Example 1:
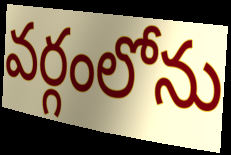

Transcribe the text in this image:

వర్గంలోను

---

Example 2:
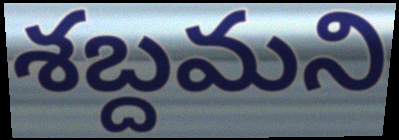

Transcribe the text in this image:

శబ్దమని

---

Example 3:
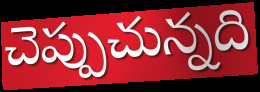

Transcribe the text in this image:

చెప్పుచున్నది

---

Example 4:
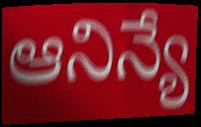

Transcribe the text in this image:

ఆనిన్యే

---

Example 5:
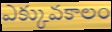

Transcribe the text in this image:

ఎక్కువకాలం